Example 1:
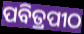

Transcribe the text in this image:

ପବିତ୍ରପୀଠ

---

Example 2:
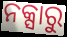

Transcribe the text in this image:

ନକ୍ସାରୁ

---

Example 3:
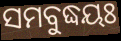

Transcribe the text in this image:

ସମବୁଦ୍ଧୟଃ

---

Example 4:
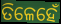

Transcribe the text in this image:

ତିଳେହେଁ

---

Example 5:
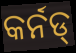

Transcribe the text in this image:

କର୍ନଡ୍